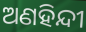
ଅଣହିନ୍ଦୀ